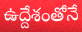
ఉద్దేశంతోనే